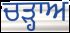
ਚੜ੍ਹਾਅ